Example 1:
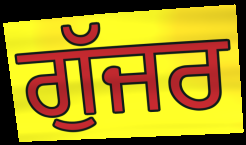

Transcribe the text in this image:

ਗੁੱਜਰ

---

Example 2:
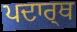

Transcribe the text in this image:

ਪਦਾਰ੍ਥ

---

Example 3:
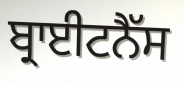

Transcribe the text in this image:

ਬ੍ਰਾਈਟਨੈੱਸ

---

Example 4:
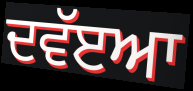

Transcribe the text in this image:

ਦਵੱੲਆ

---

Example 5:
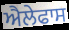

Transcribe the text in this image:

ਐਲੇਫਾਸ